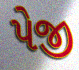
પેજી